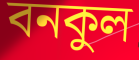
বনকুল